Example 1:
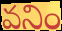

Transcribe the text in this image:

వనిం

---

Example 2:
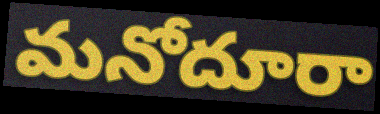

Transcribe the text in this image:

మనోదూరా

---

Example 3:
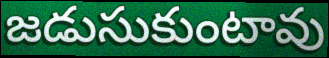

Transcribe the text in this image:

జడుసుకుంటావు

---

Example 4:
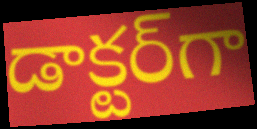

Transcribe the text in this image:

డాక్టర్‌గా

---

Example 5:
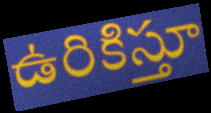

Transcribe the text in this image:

ఉరికిస్తూ